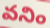
వనిం